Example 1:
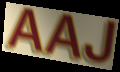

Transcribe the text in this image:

AAJ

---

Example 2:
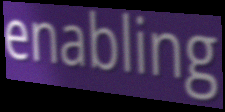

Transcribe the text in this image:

enabling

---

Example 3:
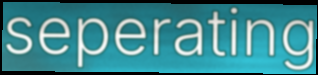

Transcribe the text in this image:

seperating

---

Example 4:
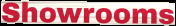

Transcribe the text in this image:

Showrooms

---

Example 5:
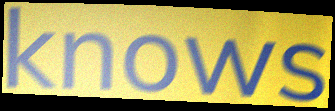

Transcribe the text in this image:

knows